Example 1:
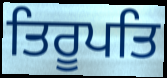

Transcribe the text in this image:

ਤਿਰੂਪਤਿ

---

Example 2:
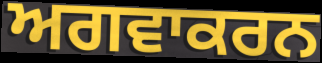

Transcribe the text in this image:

ਅਗਵਾਕਰਨ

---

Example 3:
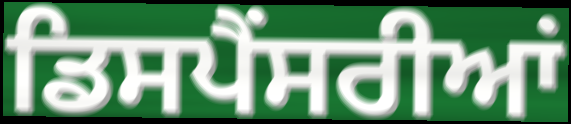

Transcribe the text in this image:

ਡਿਸਪੈਂਸਰੀਆਂ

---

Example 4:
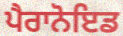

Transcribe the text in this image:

ਪੈਰਾਨੋਇਡ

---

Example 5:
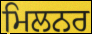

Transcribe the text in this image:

ਮਿਲਨਰ